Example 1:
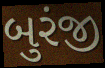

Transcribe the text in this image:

બુરંજી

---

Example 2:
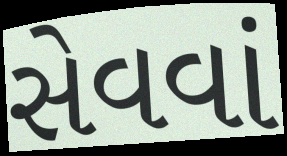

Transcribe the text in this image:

સેવવાં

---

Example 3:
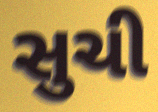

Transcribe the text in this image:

સુચી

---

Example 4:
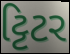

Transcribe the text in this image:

ટ્ટિટર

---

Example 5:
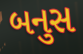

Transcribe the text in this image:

બનુસ